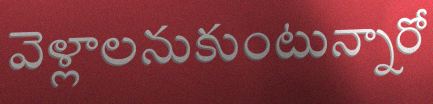
వెళ్లాలనుకుంటున్నారో